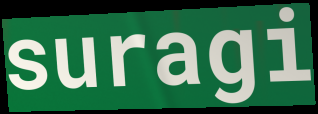
suragi